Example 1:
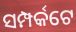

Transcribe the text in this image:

ସମ୍ପର୍କଟେ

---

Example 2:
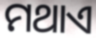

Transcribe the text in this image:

ମଥାଏ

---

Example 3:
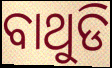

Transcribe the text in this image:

ବାଥୁଡି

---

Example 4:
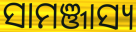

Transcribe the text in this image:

ସାମଞ୍ଜାସ୍ୟ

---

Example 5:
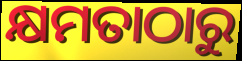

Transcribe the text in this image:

କ୍ଷମତାଠାରୁ